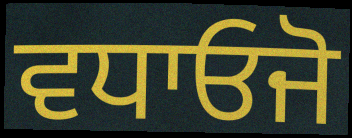
ਵਧਾਓਜੋ